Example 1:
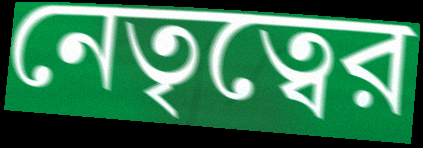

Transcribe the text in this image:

নেতৃত্বের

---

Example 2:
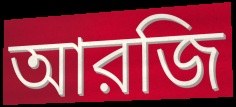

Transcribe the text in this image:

আরজি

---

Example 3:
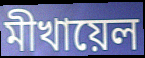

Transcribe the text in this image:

মীখায়েল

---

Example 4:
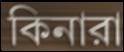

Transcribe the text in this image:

কিনারা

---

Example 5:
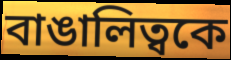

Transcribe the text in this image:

বাঙালিত্বকে